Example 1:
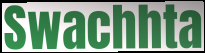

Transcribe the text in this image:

Swachhta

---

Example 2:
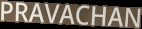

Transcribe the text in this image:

PRAVACHAN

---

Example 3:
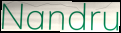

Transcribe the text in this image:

Nandru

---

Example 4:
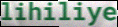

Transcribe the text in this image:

lihiliye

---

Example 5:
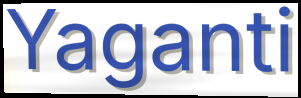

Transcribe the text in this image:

Yaganti